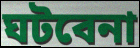
ঘটবেনা